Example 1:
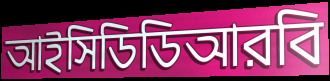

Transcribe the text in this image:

আইসিডিডিআরবি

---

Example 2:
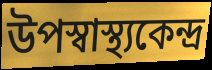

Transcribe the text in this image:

উপস্বাস্থ্যকেন্দ্র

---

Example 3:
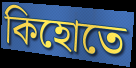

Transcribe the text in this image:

কিহোতে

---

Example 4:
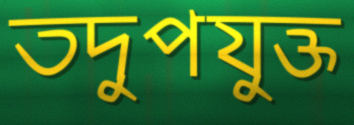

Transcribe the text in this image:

তদুপযুক্ত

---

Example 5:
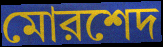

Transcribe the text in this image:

মোরশেদ